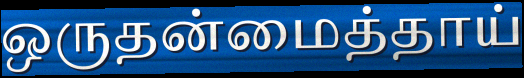
ஒருதன்மைத்தாய்